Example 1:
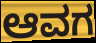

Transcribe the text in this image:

ಆವಗ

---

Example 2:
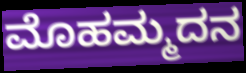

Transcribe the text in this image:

ಮೊಹಮ್ಮದನ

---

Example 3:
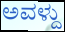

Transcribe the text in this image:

ಅವಳ್ದು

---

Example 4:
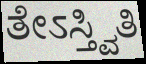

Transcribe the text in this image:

ತೇಽಸ್ತ್ವಿತಿ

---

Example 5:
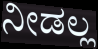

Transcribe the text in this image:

ನೀಡಲ್ಲ